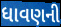
ધાવણની